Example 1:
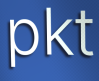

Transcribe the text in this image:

pkt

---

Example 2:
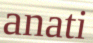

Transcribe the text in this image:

anati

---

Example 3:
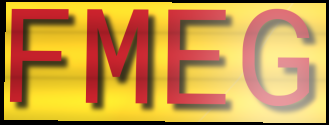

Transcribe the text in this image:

FMEG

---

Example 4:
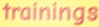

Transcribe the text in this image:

trainings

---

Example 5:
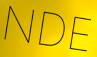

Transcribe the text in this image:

NDE